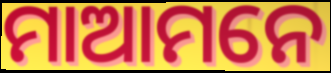
ମାଆମନେ